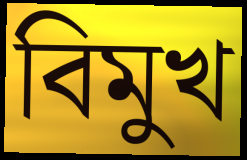
বিমুখ